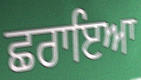
ਛਰਾਇਆ